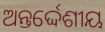
ଅନ୍ତର୍ଦ୍ଦେଶୀୟ